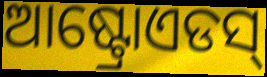
ଆଷ୍ଟ୍ରୋଏଡସ୍